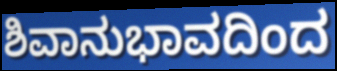
ಶಿವಾನುಭಾವದಿಂದ